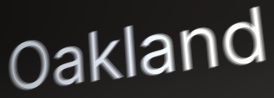
Oakland